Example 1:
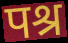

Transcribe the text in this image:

पश्र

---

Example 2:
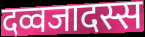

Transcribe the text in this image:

दव्वजादस्स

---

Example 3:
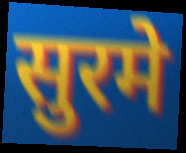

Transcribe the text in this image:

सुरमे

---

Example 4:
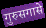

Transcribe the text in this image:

गुरुसगासे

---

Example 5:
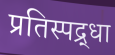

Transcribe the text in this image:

प्रतिस्पद्र्धा